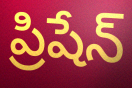
ప్రిషేన్